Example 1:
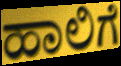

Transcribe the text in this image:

ಹಾಲಿಗೆ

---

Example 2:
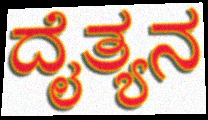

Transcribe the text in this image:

ದೈತ್ಯನ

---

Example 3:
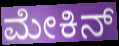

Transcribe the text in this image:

ಮೇಕಿನ್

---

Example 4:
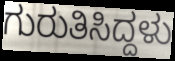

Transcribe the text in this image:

ಗುರುತಿಸಿದ್ದಳು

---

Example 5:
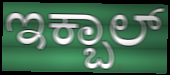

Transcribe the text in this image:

ಇಕ್ಬಾಲ್